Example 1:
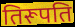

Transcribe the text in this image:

तिरूपति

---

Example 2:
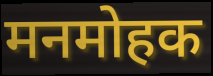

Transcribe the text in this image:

मनमोहक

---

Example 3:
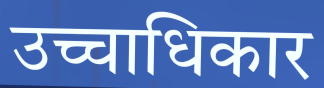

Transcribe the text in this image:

उच्‍चाधिकार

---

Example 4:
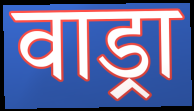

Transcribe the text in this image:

वाड्रा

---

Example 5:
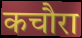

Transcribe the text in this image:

कचौरा